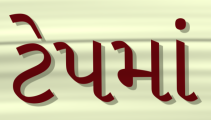
ટેપમાં